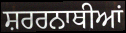
ਸ਼ਰਰਨਾਥੀਆਂ